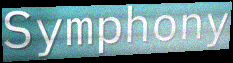
Symphony